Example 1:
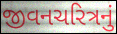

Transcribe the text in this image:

જીવનચરિત્રનું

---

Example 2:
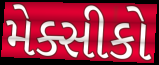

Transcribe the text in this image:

મેક્સીકો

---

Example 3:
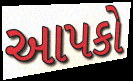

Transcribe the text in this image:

આપકો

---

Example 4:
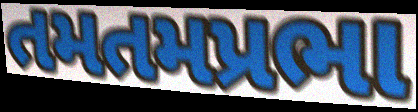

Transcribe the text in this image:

તમતમપ્રભા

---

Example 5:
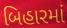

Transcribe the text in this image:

બિહારમાં